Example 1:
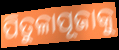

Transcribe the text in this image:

ପିତୁଳାପୂଜାକୁ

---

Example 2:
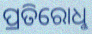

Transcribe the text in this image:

ପ୍ରତିରୋଧୢ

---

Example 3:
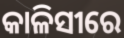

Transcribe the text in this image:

କାଳିସୀରେ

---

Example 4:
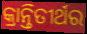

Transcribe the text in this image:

କ୍ରାନ୍ତିତୀର୍ଥର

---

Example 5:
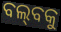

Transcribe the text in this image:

ବଲ୍‌ବକୁ